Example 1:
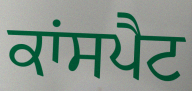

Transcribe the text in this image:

ਕਾਂਸਪੈਟ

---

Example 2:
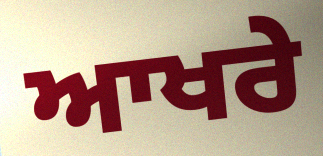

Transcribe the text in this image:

ਆਖਰੇ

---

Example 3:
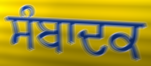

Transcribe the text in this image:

ਸੰਬਾਦਕ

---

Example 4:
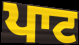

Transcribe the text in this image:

ਪਾਟ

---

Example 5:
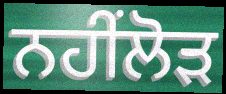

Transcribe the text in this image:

ਨਹੀਂਲੋੜ